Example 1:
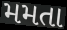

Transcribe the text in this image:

મમતા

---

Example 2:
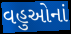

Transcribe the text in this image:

વહુઓનાં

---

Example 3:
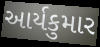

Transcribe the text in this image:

આર્યકુમાર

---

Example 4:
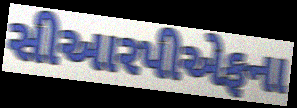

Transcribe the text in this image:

સીઆરપીએફના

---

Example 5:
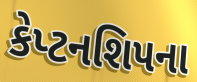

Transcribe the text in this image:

કેપ્ટનશિપના